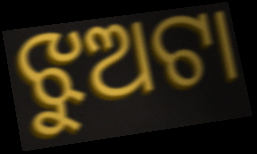
ଝୁଅଟା